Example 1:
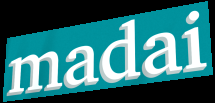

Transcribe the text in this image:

madai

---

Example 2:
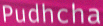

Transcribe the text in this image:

Pudhcha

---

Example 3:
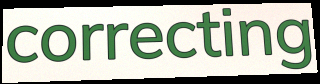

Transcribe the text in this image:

correcting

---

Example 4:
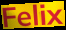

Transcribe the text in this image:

Felix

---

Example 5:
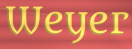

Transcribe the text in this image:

Weyer